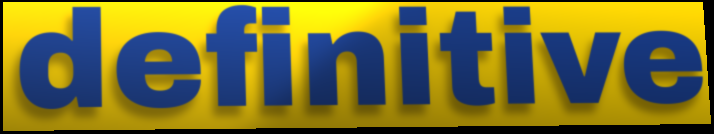
definitive